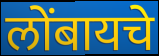
लोंबायचे